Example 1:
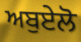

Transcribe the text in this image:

ਅਬੁਏਲੋ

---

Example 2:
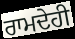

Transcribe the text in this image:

ਰਾਮਦੇਹੀ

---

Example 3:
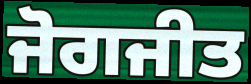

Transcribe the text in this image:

ਜੋਗਜੀਤ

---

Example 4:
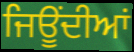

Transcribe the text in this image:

ਜਿਊਂਦੀਆਂ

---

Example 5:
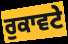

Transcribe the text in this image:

ਰੁਕਾਵਟੇ